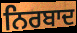
ਨਿਰਬਾਦ